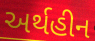
અર્થહીન